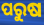
ପରୁଷ